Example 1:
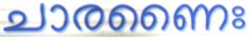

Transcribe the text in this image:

ചാരണൈഃ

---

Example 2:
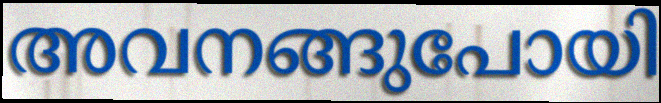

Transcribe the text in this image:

അവനങ്ങുപോയി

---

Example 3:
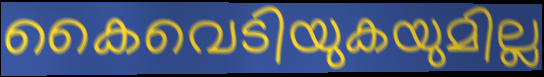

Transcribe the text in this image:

കൈവെടിയുകയുമില്ല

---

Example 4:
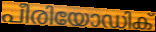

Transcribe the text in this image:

പീരിയോഡിക്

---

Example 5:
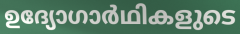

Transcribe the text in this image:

ഉദ്യോഗാർഥികളുടെ